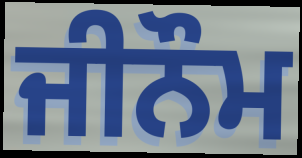
ਜੀਨੌਮ